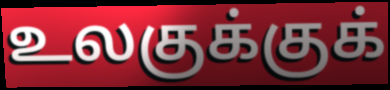
உலகுக்குக்